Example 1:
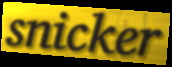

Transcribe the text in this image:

snicker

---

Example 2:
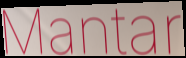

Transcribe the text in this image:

Mantar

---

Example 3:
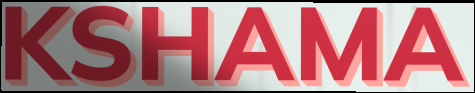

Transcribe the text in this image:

KSHAMA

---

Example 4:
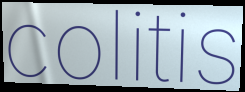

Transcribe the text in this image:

colitis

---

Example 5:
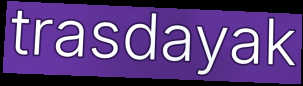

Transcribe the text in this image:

trasdayak